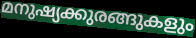
മനുഷ്യക്കുരങ്ങുകളും